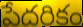
పేదరికం